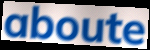
aboute